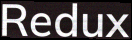
Redux